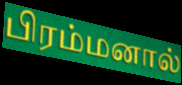
பிரம்மனால்